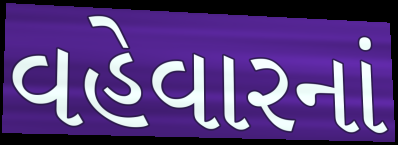
વહેવારનાં